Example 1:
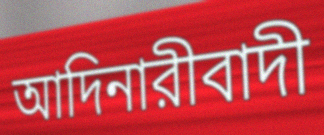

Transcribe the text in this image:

আদিনারীবাদী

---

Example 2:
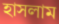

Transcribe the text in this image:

হাসলাম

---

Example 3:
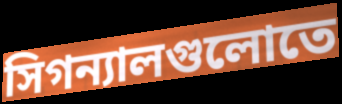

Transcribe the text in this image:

সিগন্যালগুলোতে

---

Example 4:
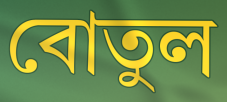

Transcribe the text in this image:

বোতুল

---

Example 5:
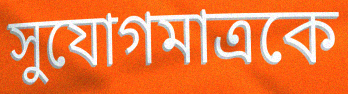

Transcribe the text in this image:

সুযোগমাত্রকে